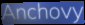
Anchovy